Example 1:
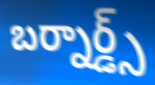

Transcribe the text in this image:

బర్నార్డ్స్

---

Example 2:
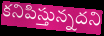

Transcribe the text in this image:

కనిపిస్తున్నదని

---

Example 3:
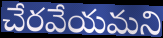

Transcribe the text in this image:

చేరవేయమని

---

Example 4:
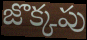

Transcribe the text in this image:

జొక్కపు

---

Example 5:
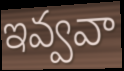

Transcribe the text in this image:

ఇవ్వవా